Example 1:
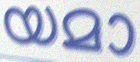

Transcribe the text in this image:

യമാ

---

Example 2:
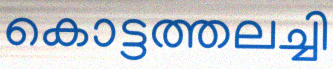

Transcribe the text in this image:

കൊട്ടത്തലച്ചി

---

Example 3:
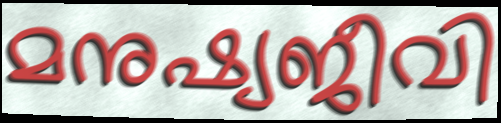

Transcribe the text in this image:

മനുഷ്യജീവി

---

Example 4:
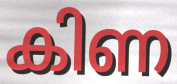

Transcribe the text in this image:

കിണ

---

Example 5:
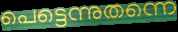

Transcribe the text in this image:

പെട്ടെന്നുതന്നെ